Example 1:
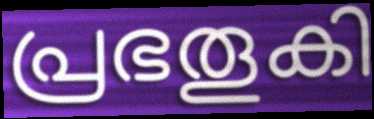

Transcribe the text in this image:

പ്രഭതൂകി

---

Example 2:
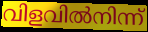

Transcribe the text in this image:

വിളവിൽനിന്ന്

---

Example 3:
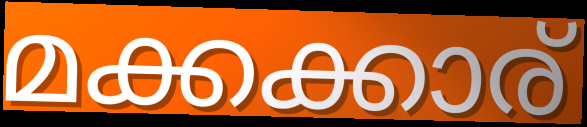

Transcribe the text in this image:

മക്കക്കാര്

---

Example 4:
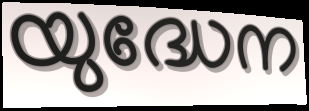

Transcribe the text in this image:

യുദ്ധേന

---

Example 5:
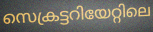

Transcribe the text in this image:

സെക്രട്ടറിയേറ്റിലെ